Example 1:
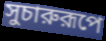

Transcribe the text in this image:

সুচারুরূপে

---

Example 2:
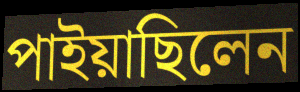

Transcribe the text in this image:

পাইয়াছিলেন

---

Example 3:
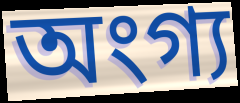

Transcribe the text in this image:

অংগ্য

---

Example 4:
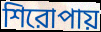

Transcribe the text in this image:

শিরোপায়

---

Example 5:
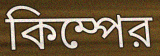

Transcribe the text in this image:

কিম্পের